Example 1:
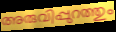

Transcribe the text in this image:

അരുവിപ്പുറത്തും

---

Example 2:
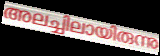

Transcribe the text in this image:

അലച്ചിലായിരുന്നു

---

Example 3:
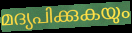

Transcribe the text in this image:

മദ്യപിക്കുകയും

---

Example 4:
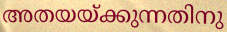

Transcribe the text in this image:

അതയയ്ക്കുന്നതിനു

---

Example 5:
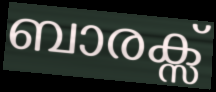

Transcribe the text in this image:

ബാരക്സ്